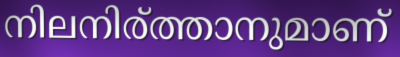
നിലനിര്ത്താനുമാണ്